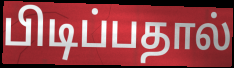
பிடிப்பதால்